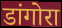
डांगोरा